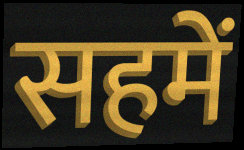
सहमें